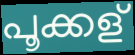
പൂക്കള്